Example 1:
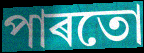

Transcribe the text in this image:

পাৰতো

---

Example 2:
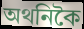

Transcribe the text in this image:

অথনিকৈ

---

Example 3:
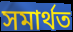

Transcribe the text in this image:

সমাৰ্থত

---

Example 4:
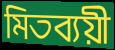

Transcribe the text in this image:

মিতব্যয়ী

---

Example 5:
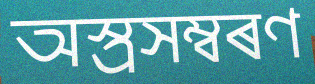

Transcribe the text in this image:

অস্ত্ৰসম্বৰণ